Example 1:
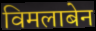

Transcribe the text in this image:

विमलाबेन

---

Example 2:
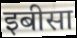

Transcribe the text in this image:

इबीसा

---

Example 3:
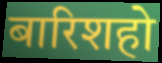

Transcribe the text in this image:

बारिशहो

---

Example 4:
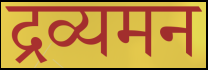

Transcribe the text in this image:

द्रव्यमन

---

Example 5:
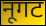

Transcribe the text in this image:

नूगट